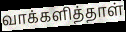
வாக்களித்தாள்